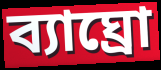
ব্যাঘ্রো